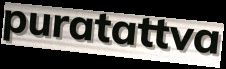
puratattva